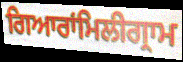
ਗਿਆਰਾਂਮਿਲੀਗ੍ਰਾਮ